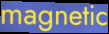
magnetic